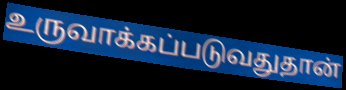
உருவாக்கப்படுவதுதான்